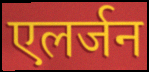
एलर्जन